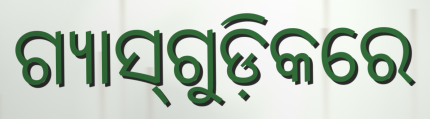
ଗ୍ୟାସ୍‌ଗୁଡ଼ିକରେ